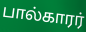
பால்காரர்